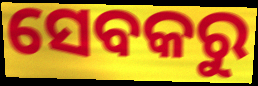
ସେବକରୁ